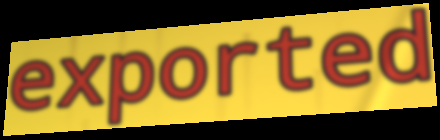
exported